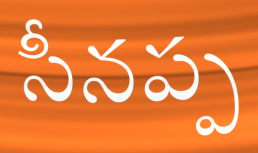
సీనప్ప